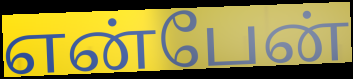
என்பேன்